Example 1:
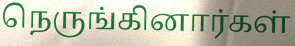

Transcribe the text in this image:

நெருங்கினார்கள்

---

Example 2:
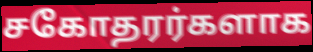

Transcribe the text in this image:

சகோதரர்களாக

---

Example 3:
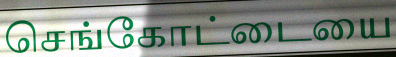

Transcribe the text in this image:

செங்கோட்டையை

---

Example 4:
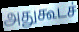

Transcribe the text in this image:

அதுகூடச்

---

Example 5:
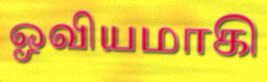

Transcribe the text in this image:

ஓவியமாகி